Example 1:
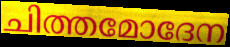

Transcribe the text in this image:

ചിത്തമോദേന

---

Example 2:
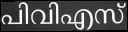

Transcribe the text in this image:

പിവിഎസ്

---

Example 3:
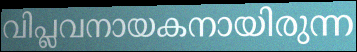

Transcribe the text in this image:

വിപ്ലവനായകനായിരുന്ന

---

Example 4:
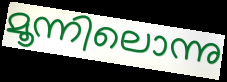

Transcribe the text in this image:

മൂന്നിലൊന്നു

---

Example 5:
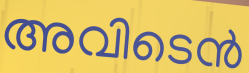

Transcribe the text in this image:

അവിടെൻ